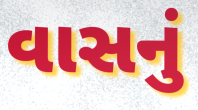
વાસનું